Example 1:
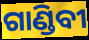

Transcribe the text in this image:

ଗାଣ୍ଡିବୀ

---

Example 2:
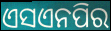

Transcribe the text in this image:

ଏସଏନପିର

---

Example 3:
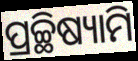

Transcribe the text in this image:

ପ୍ରଚ୍ଛିଷ୍ୟାମି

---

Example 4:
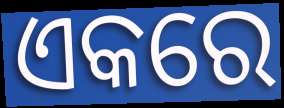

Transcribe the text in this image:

ଏକରେ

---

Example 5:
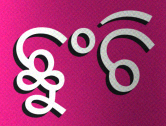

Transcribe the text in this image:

ଛୁଂଚି